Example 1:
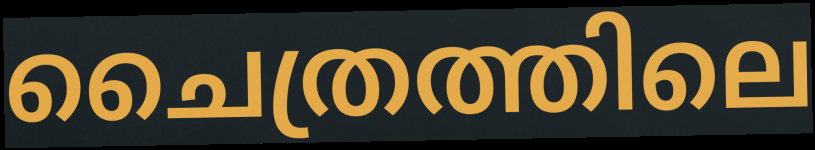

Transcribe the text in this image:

ചൈത്രത്തിലെ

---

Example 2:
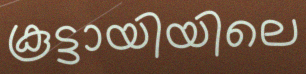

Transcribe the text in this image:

കൂട്ടായിയിലെ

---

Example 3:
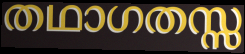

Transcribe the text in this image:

തഥാഗതസ്സ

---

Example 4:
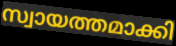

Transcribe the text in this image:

സ്വായത്തമാക്കി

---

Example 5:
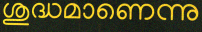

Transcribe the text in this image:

ശുദ്ധമാണെന്നു